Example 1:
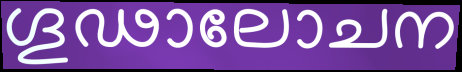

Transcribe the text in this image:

ഗൂഢാലോചന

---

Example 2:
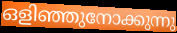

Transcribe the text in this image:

ഒളിഞ്ഞുനോക്കുന്നു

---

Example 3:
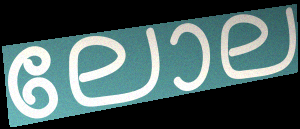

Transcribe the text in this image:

ലോല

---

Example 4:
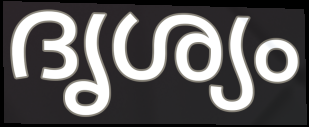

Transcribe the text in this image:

ദൃശ്യം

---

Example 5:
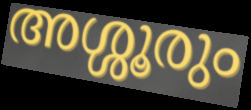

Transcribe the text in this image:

അശ്ശൂരും